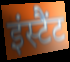
इंस्टैंट